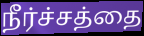
நீர்ச்சத்தை